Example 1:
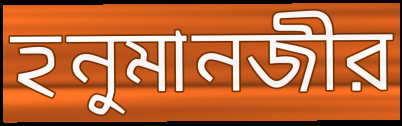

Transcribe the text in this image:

হনুমানজীর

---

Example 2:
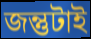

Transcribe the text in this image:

জন্তুটাই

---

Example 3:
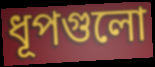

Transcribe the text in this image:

ধূপগুলো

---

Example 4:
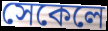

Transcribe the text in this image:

সেকেলে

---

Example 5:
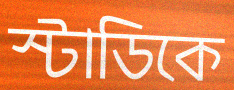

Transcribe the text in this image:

স্টাডিকে